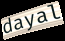
dayal